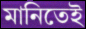
মানিতেই